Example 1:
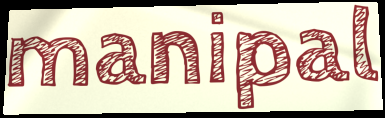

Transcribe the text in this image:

manipal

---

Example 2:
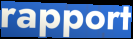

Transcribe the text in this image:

rapport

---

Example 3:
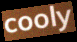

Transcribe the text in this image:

cooly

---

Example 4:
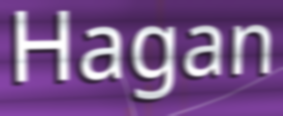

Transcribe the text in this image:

Hagan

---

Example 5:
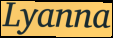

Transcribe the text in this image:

Lyanna